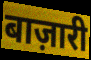
बाज़ारी